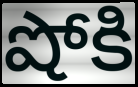
షోకి